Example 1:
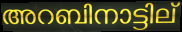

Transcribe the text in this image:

അറബിനാട്ടില്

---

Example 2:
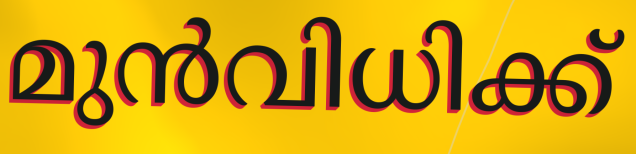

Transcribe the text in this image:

മുൻവിധിക്ക്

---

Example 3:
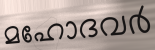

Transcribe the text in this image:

മഹോദവർ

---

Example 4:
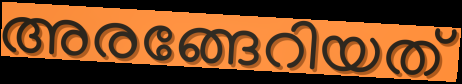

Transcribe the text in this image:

അരങ്ങേറിയത്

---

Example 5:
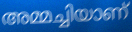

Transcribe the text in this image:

അമ്മച്ചിയാണ്